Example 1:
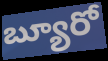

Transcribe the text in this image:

బ్యూరో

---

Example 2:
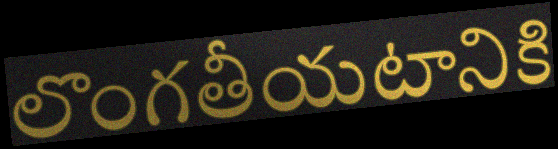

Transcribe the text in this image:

లొంగతీయటానికి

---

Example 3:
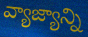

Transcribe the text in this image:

వ్యాజ్యాన్ని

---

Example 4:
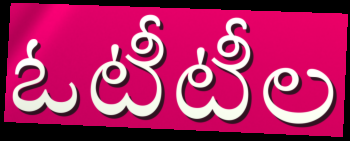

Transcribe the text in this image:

ఓటీటీల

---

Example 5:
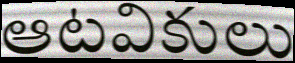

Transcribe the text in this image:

ఆటవికులు